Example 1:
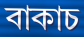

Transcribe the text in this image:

বাকাচ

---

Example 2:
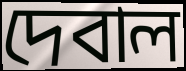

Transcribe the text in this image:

দেবাল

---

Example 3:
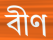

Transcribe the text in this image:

বীণ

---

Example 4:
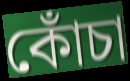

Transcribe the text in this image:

কোঁচা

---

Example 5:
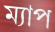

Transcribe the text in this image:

ম্যাপ